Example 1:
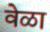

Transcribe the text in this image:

वेळा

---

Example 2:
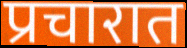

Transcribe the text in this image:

प्रचारात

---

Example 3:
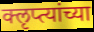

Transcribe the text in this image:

क्लृप्त्यांच्या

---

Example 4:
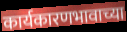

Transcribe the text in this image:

कार्यकारणभावाच्या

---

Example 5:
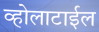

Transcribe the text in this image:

व्होलाटाईल